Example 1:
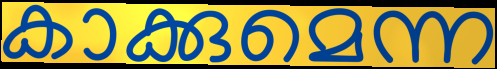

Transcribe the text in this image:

കാക്കുമെന്ന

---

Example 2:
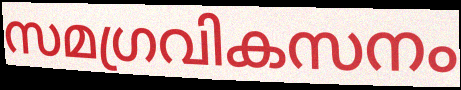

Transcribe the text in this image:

സമഗ്രവികസനം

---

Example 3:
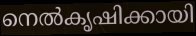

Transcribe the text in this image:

നെൽകൃഷിക്കായി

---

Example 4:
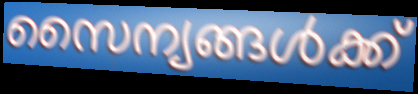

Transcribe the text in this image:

സൈന്യങ്ങൾക്ക്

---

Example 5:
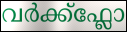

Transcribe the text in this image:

വർക്ക്ഫ്ലോ